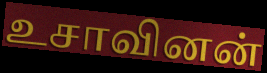
உசாவினன்